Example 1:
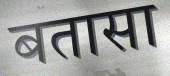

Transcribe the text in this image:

बतासा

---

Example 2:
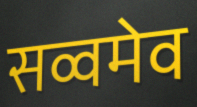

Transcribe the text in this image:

सव्वमेव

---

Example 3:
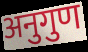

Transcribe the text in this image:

अनुगुण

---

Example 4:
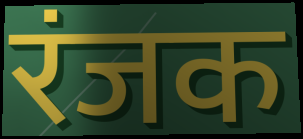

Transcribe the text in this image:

रंजक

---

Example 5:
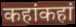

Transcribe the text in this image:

कहांकहां